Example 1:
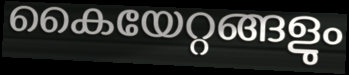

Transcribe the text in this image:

കൈയേറ്റങ്ങളും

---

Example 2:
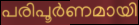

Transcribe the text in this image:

പരിപൂർണമായി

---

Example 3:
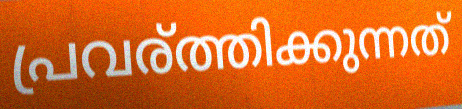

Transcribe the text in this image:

പ്രവര്ത്തിക്കുന്നത്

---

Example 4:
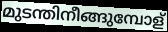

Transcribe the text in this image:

മുടന്തിനീങ്ങുമ്പോള്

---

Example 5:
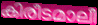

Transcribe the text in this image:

കിരീടമാലീ